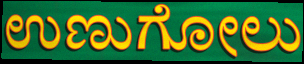
ಉಣುಗೋಲು